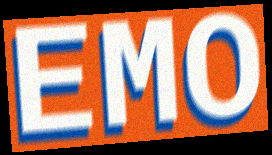
EMO